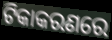
ଟିକାକରଣରେ